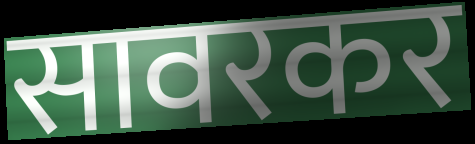
सावरकर